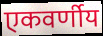
एकवर्णीय